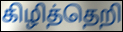
கிழித்தெறி